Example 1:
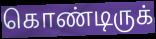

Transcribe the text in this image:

கொண்டிருக்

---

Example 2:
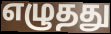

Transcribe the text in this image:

எழுதது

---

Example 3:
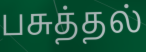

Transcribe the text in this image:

பசுத்தல்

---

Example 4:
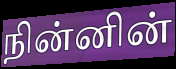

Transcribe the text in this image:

நின்னின்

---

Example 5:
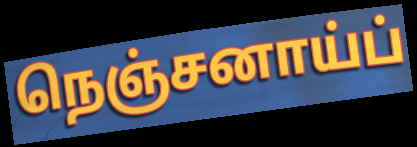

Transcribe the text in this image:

நெஞ்சனாய்ப்